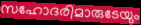
സഹോദരിമാരുടേയും